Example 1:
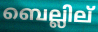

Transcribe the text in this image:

ബെല്ലില്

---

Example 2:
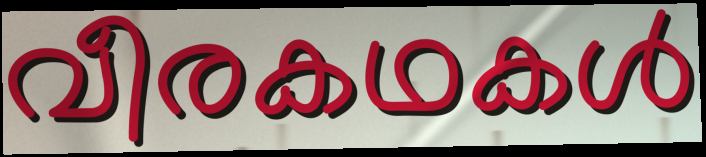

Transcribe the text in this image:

വീരകഥകൾ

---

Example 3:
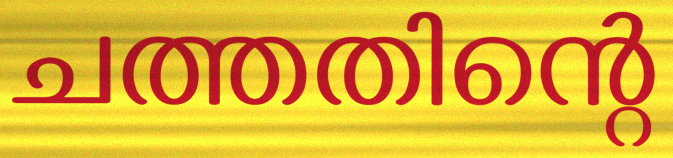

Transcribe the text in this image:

ചത്തതിന്റെ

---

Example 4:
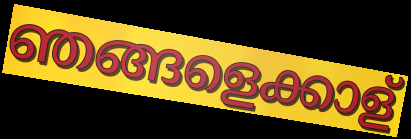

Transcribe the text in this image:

ഞങ്ങളെക്കാള്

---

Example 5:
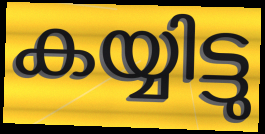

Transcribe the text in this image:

കയ്യിട്ടു